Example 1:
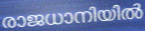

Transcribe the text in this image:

രാജധാനിയിൽ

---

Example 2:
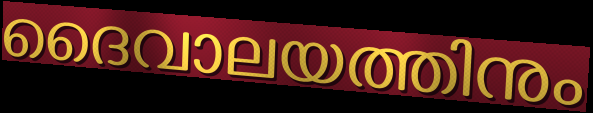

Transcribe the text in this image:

ദൈവാലയത്തിനും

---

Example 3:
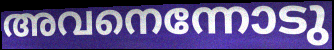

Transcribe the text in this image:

അവനെന്നോടു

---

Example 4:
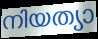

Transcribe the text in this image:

നിയത്യാ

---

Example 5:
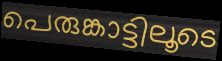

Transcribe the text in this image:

പെരുങ്കാട്ടിലൂടെ